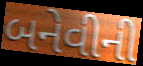
બનેવીની